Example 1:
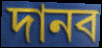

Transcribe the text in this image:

দানব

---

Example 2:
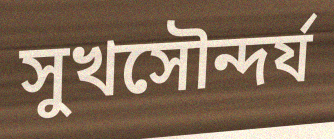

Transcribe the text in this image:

সুখসৌন্দর্য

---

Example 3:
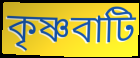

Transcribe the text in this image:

কৃষ্ণবাটি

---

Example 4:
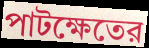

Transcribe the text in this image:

পাটক্ষেতের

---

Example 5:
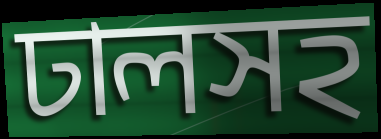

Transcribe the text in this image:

ঢালসহ